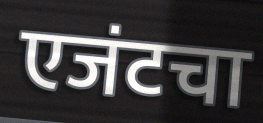
एजंटचा